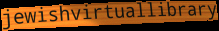
jewishvirtuallibrary